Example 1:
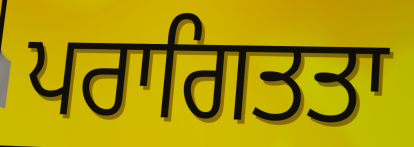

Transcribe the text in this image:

ਪਰਾਗਿਤਤਾ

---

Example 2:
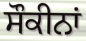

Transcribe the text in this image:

ਸੌਕੀਨਾਂ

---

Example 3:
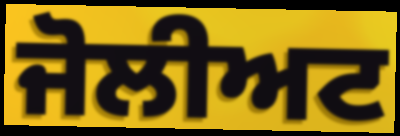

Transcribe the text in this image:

ਜੋਲੀਅਟ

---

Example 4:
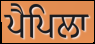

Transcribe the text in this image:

ਪੈਪਿਲਾ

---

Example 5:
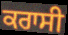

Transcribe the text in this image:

ਕਰਾਸੀ